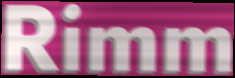
Rimm